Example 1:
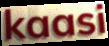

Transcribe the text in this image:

kaasi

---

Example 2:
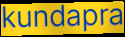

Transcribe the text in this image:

kundapra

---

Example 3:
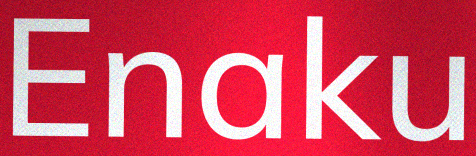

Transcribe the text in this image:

Enaku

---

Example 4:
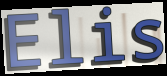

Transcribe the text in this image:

Elis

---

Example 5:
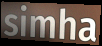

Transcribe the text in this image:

simha